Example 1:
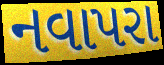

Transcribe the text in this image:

નવાપરા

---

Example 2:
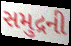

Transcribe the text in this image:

સમુદ્રની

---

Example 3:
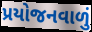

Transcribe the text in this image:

પ્રયોજનવાળું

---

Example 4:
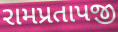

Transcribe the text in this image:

રામપ્રતાપજી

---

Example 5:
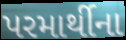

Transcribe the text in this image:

પરમાર્થીના